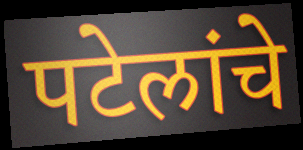
पटेलांचे